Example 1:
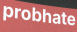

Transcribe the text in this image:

probhate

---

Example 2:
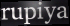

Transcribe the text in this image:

rupiya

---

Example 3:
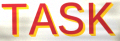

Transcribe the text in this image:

TASK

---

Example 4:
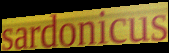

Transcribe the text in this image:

sardonicus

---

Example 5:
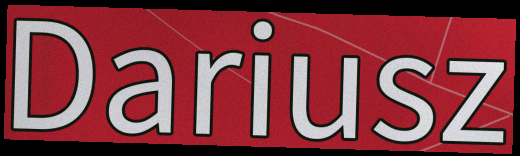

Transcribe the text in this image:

Dariusz